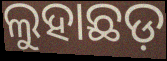
ଲୁହାଛଡ଼